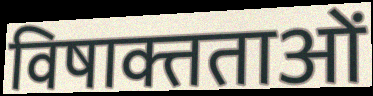
विषाक्तताओं